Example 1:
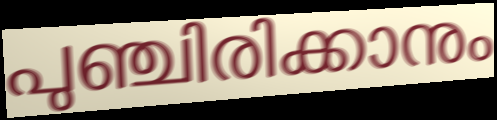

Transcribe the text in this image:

പുഞ്ചിരിക്കാനും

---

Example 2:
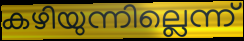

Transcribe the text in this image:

കഴിയുന്നില്ലെന്ന്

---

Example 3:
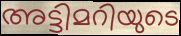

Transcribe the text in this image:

അട്ടിമറിയുടെ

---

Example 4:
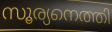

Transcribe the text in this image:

സൂര്യനെത്തി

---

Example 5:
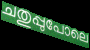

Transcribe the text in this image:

ചതുപ്പുപോലെ